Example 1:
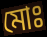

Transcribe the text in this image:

মোঃ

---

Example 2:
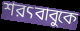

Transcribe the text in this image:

শরৎবাবুকে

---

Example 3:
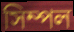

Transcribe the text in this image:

সিম্পল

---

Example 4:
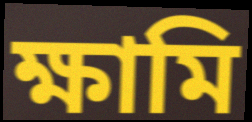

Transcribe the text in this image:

ক্ষামি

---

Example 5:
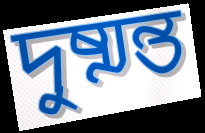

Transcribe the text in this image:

দুষ্মন্ত